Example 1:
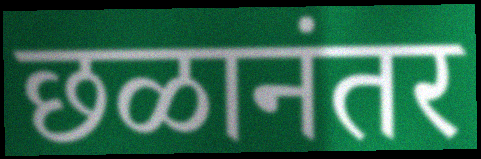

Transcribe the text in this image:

छळानंतर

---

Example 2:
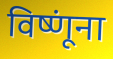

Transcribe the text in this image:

विष्णूंना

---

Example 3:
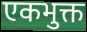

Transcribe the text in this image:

एकभुक्त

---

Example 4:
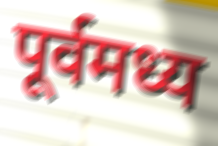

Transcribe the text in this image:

पूर्वमध्य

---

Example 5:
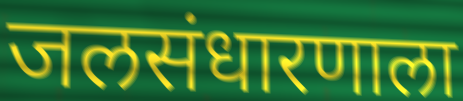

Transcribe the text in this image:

जलसंधारणाला